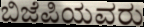
ಬಿಜೆಪಿಯವರು